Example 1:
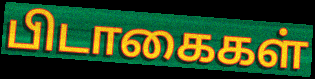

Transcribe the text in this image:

பிடாகைகள்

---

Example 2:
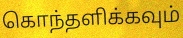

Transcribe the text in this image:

கொந்தளிக்கவும்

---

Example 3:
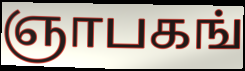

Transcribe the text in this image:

ஞாபகங்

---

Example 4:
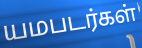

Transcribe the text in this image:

யமபடர்கள்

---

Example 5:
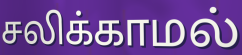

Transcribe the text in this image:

சலிக்காமல்